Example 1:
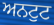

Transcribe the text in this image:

ਅਨਟੁਟ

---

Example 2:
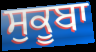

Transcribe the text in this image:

ਸੁਕੂਬਾ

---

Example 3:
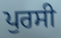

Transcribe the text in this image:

ਪੁਰਸੀ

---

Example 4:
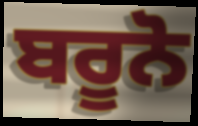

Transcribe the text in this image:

ਬਰੂਨੋ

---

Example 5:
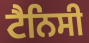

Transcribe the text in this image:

ਟੈਨਿਸੀ